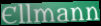
Ellmann